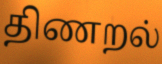
திணறல்